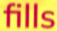
fills